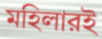
মহিলারই